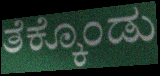
ತೆಕ್ಕೊಂಡು